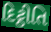
દિટ્ઠીતિ